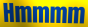
Hmmmm